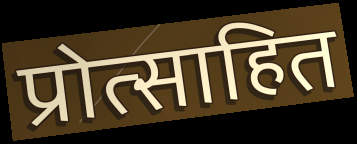
प्रोत्‍साहित